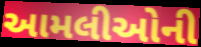
આમલીઓની